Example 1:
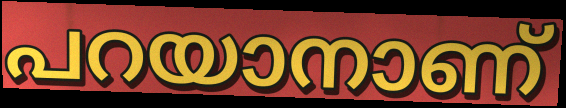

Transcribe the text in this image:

പറയാനാണ്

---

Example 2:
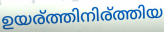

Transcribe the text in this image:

ഉയര്ത്തിനിര്ത്തിയ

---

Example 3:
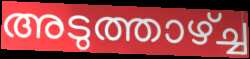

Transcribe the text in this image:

അടുത്താഴ്ച്ച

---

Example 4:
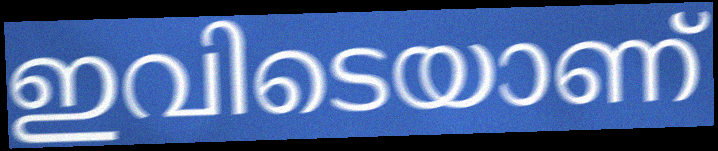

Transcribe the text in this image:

ഇവിടെയാണ്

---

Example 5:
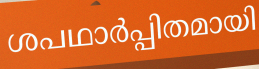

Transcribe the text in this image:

ശപഥാർപ്പിതമായി